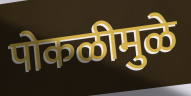
पोकळीमुळे